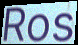
Ros